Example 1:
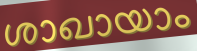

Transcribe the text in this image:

ശാഖായാം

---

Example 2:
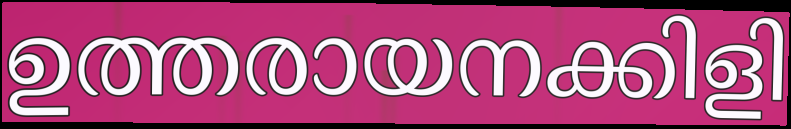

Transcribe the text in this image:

ഉത്തരായനക്കിളി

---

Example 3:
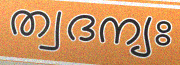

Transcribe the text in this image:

ത്വദന്യഃ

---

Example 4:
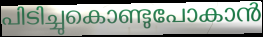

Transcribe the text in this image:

പിടിച്ചുകൊണ്ടുപോകാൻ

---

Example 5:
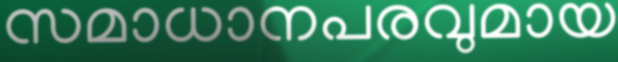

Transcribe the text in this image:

സമാധാനപരവുമായ